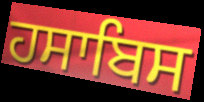
ਹਸਾਬਿਸ